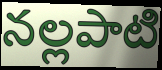
నల్లపాటి